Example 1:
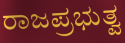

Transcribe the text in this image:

ರಾಜಪ್ರಭುತ್ವ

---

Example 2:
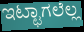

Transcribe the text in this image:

ಇಟ್ಟಾಗಲೆಲ್ಲ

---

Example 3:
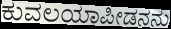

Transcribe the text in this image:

ಕುವಲಯಾಪೀಡನನು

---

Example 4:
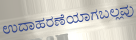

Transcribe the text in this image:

ಉದಾಹರಣೆಯಾಗಬಲ್ಲವು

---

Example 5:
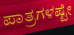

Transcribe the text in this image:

ಪಾತ್ರಗಳಷ್ಟೇ